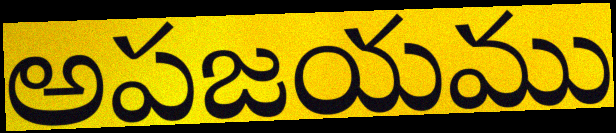
అపజయము